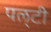
पल्टी